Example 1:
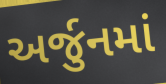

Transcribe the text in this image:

અર્જુનમાં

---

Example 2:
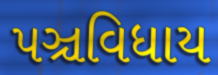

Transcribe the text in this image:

પઞ્ચવિધાય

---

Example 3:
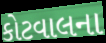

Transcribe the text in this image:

કોટવાલના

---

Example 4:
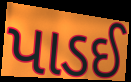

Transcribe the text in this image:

પાડઈ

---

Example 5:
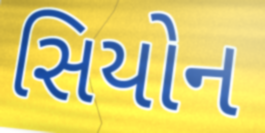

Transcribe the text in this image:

સિયોન